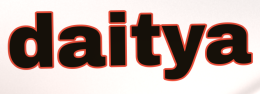
daitya